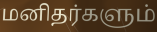
மனிதர்களும்